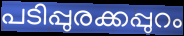
പടിപ്പുരക്കപ്പുറം